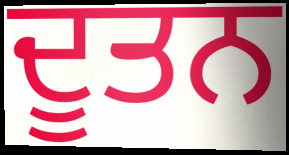
ਦੂਤਨ